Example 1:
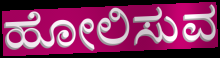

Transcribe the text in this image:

ಹೋಲಿಸುವ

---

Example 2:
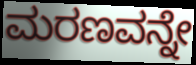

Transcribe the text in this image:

ಮರಣವನ್ನೇ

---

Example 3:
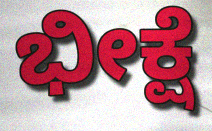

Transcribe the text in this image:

ಭೀಕ್ಷೆ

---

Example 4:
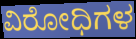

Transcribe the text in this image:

ವಿರೋಧಿಗಳ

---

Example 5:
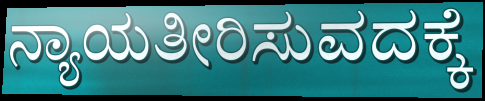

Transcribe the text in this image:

ನ್ಯಾಯತೀರಿಸುವದಕ್ಕೆ